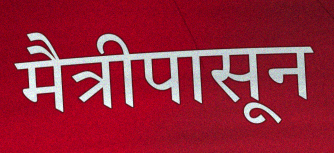
मैत्रीपासून